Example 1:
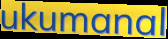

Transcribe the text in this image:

ukumanal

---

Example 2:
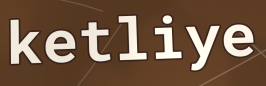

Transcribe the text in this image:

ketliye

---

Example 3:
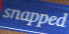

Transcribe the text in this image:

snapped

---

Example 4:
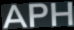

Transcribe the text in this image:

APH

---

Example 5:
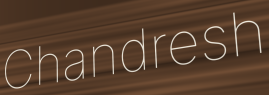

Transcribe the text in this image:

Chandresh